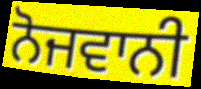
ਨੋਜਵਾਨੀ